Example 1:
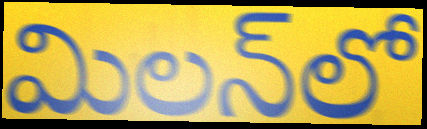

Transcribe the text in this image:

మిలన్‌లో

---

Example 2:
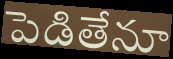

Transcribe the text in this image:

పెడితేనూ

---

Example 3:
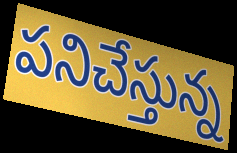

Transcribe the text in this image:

పనిచేస్తున్న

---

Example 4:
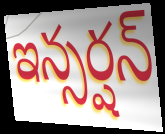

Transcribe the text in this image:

ఇన్సర్షన్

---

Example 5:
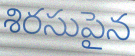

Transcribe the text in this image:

శిరసుపైన